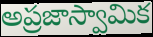
అప్రజాస్వామిక